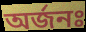
অর্জনঃ